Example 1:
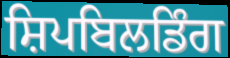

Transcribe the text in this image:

ਸ਼ਿਪਬਿਲਡਿੰਗ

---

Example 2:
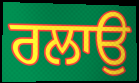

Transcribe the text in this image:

ਰਲਾਉ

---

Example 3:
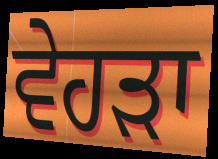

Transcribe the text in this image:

ਵੇਹੜਾ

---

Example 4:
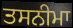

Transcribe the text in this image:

ਤਸਨੀਮਾ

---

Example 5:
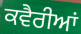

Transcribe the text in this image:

ਕਵੈਰੀਆਂ